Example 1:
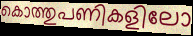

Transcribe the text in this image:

കൊത്തുപണികളിലോ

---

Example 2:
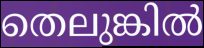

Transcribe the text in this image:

തെലുങ്കിൽ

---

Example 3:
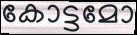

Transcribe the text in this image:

കോട്ടമോ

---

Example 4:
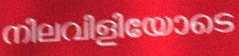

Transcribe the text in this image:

നിലവിളിയോടെ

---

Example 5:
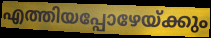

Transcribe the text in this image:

എത്തിയപ്പോഴേയ്ക്കും